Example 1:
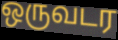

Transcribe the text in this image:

ஒருவடர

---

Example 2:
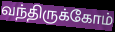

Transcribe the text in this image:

வந்திருக்கோம்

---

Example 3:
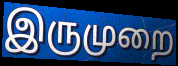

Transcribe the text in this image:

இருமுறை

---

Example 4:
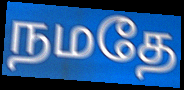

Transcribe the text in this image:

நமதே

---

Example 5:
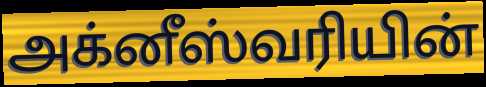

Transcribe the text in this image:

அக்னீஸ்வரியின்